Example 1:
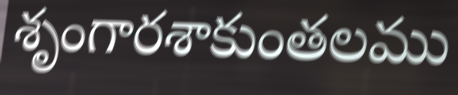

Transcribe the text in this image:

శృంగారశాకుంతలము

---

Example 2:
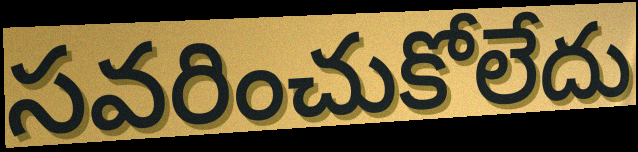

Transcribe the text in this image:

సవరించుకోలేదు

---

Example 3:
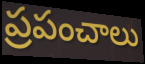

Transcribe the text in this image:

ప్రపంచాలు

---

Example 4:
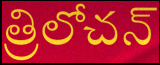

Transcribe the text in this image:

త్రిలోచన్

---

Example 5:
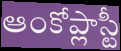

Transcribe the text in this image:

ఆంకోప్లాస్టీ